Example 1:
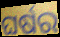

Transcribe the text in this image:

ଘର୍ଷର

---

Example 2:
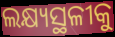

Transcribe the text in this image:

ଲକ୍ଷ୍ୟସ୍ଥଳୀକୁ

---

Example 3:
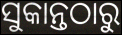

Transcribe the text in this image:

ସୁକାନ୍ତଠାରୁ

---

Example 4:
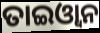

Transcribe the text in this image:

ତାଇଓ୍ୱାନ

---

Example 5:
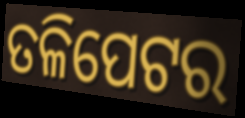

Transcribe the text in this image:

ତଳିପେଟର